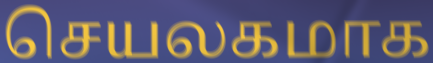
செயலகமாக